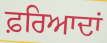
ਫ਼ਰਿਆਦਾਂ